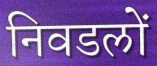
निवडलों